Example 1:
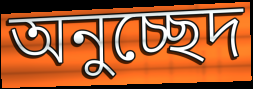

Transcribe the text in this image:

অনুচ্ছেদ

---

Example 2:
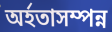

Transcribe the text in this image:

অৰ্হতাসম্পন্ন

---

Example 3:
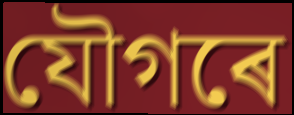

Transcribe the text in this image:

যৌগৰে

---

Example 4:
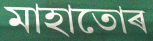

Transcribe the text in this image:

মাহাতোৰ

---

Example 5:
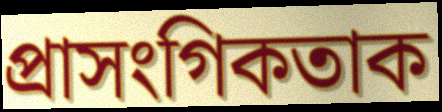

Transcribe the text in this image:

প্ৰাসংগিকতাক